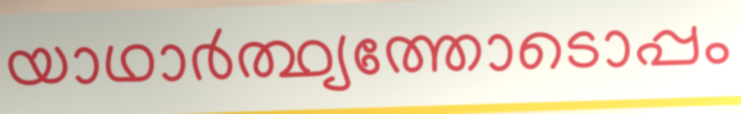
യാഥാർത്ഥ്യത്തോടൊപ്പം